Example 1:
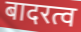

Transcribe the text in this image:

बादरत्व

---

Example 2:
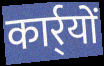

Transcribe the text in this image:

कार्र्यों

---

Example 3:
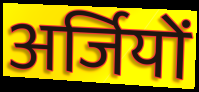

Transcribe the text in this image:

अर्जियों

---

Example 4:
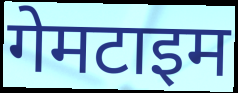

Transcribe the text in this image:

गेमटाइम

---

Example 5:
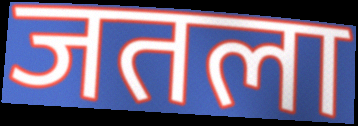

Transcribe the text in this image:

जतला